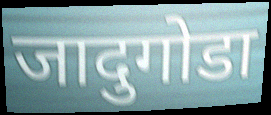
जादुगोडा